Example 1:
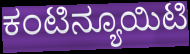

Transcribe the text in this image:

ಕಂಟಿನ್ಯೂಯಿಟಿ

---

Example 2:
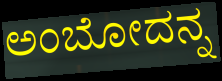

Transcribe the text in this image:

ಅಂಬೋದನ್ನ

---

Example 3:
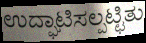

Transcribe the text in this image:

ಉದ್ಘಾಟಿಸಲ್ಪಟ್ಟಿತು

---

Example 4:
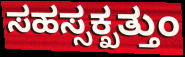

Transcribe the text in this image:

ಸಹಸ್ಸಕ್ಖತ್ತುಂ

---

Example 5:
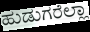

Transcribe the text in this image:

ಹುಡುಗರೆಲ್ಲಾ